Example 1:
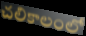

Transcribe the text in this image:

చలికాలంలో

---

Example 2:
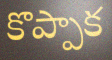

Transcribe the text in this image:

కొప్పాక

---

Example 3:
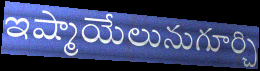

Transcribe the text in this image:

ఇష్మాయేలునుగూర్చి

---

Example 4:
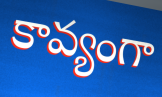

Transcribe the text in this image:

కావ్యంగా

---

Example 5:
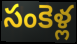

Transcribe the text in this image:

సంకెళ్ల